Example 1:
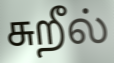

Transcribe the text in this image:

சுறீல்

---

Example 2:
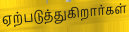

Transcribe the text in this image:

ஏற்படுத்துகிறார்கள்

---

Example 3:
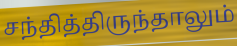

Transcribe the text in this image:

சந்தித்திருந்தாலும்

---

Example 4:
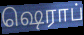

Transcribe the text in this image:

ஷெராப்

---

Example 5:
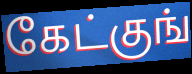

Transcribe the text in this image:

கேட்குங்